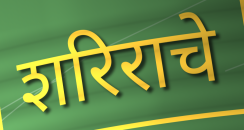
शरिराचे